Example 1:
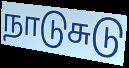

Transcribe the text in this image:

நாடுசுடு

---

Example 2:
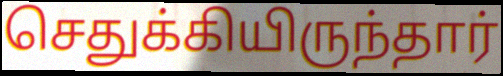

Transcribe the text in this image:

செதுக்கியிருந்தார்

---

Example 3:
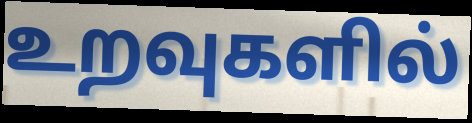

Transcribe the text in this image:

உறவுகளில்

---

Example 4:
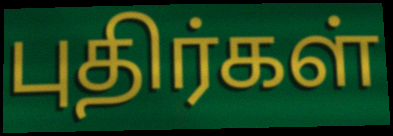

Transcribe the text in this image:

புதிர்கள்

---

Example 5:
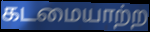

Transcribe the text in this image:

கடமையாற்ற